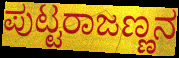
ಪುಟ್ಟರಾಜಣ್ಣನ